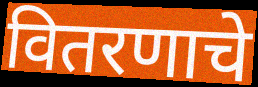
वितरणाचे